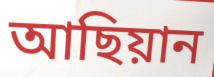
আছিয়ান